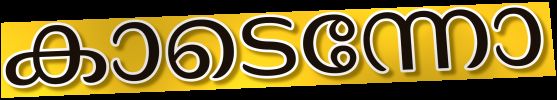
കാടെന്നോ